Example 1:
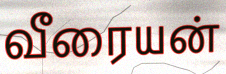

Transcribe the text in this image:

வீரையன்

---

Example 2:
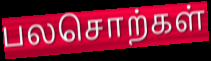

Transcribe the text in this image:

பலசொற்கள்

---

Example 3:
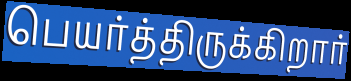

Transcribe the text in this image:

பெயர்த்திருக்கிறார்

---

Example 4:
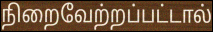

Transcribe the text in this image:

நிறைவேற்றப்பட்டால்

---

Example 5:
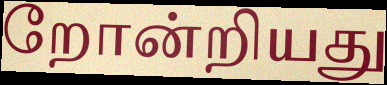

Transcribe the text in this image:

றோன்றியது